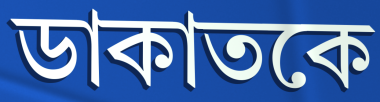
ডাকাতকে